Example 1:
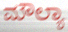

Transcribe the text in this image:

ಮೌಲ್ಯಾ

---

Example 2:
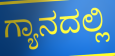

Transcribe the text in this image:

ಗ್ಯಾನದಲ್ಲಿ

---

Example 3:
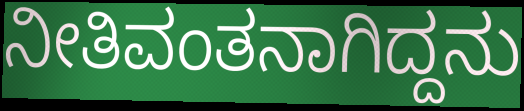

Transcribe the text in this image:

ನೀತಿವಂತನಾಗಿದ್ದನು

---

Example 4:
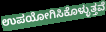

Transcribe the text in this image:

ಉಪಯೋಗಿಸಿಕೊಳ್ಳುತ್ತವೆ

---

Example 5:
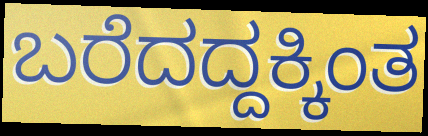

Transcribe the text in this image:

ಬರೆದದ್ದಕ್ಕಿಂತ